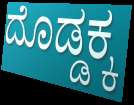
ದೊಡ್ಡಕ್ಕ